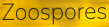
Zoospores